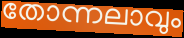
തോന്നലാവും